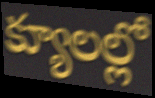
క్యూలల్లో